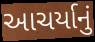
આચર્યાનું